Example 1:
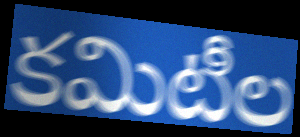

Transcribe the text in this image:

కమిటీల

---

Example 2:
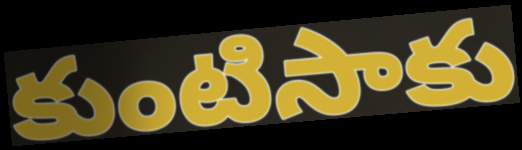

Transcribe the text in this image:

కుంటిసాకు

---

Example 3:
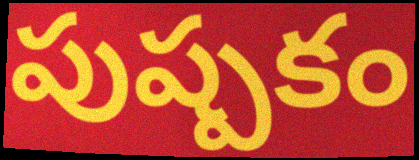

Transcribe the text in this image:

పుష్పకం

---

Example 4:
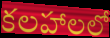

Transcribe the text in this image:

కలహాలలో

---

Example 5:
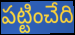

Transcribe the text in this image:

పట్టించేది